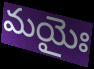
మయైః